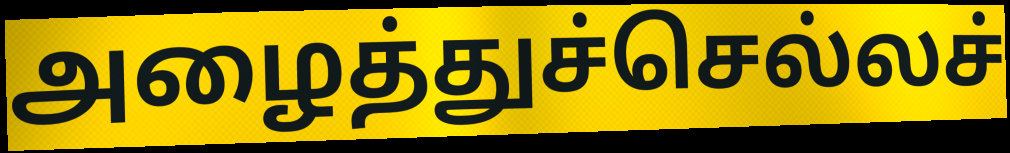
அழைத்துச்செல்லச்